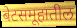
बेटसमूहातील